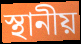
স্থানীয়